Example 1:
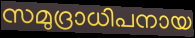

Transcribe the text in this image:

സമുദ്രാധിപനായ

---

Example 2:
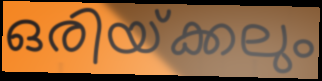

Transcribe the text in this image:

ഒരിയ്‌ക്കലും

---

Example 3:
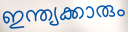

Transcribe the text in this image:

ഇന്ത്യക്കാരും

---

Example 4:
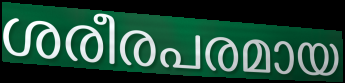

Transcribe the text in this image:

ശരീരപരമായ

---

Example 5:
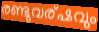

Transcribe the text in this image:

രണ്ടുവര്ഷവും